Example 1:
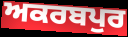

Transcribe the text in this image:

ਅਕਰਬਪੁਰ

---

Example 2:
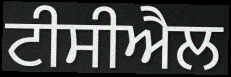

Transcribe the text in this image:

ਟੀਸੀਐਲ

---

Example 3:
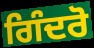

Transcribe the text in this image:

ਗਿੰਦਰੋ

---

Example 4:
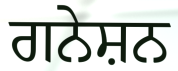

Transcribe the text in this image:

ਗਨੇਸ਼ਨ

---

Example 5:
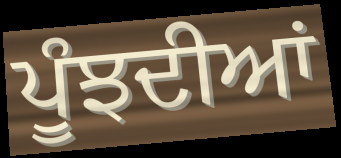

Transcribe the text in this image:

ਪੂੰਝਦੀਆਂ